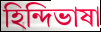
হিন্দিভাষা